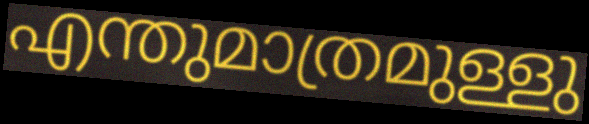
എന്തുമാത്രമുള്ളു